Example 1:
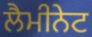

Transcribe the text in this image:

ਲੈਮੀਨੇਟ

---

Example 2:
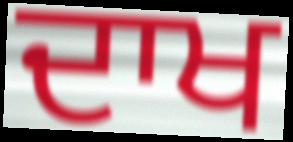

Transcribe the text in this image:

ਦਾਖ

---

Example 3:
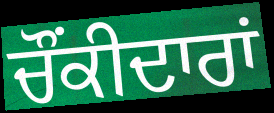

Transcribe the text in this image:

ਚੌਂਕੀਦਾਰਾਂ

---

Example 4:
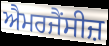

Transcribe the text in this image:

ਐਮਰਜੈਂਸੀਜ਼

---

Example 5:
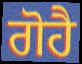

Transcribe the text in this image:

ਗੋਹੈ